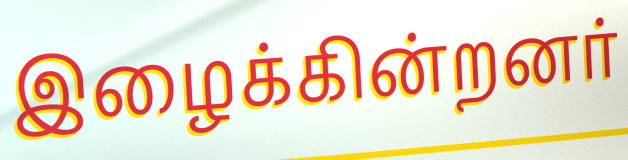
இழைக்கின்றனர்